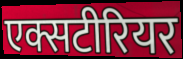
एक्सटीरियर